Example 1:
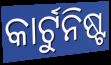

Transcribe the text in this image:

କାର୍ଟୁନିଷ୍ଟ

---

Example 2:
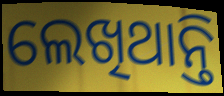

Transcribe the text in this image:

ଲେଖିଥାନ୍ତି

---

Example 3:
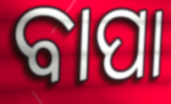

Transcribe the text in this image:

ବାପା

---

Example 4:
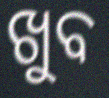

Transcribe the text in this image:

ଖୁବ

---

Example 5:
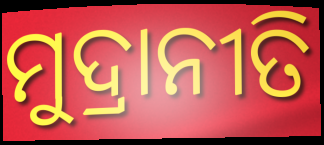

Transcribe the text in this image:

ମୁଦ୍ରାନୀତି